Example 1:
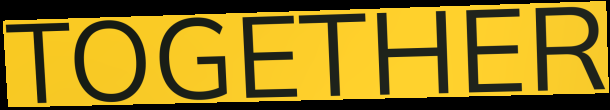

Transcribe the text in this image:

TOGETHER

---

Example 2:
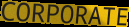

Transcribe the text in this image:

CORPORATE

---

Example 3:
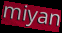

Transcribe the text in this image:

miyan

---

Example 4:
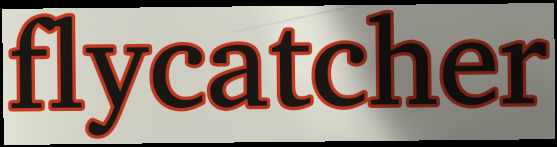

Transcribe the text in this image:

flycatcher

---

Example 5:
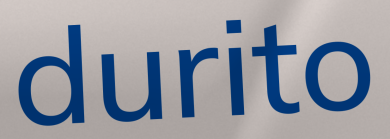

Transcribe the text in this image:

durito